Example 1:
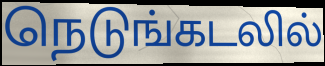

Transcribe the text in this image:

நெடுங்கடலில்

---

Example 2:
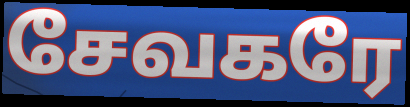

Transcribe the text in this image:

சேவகரே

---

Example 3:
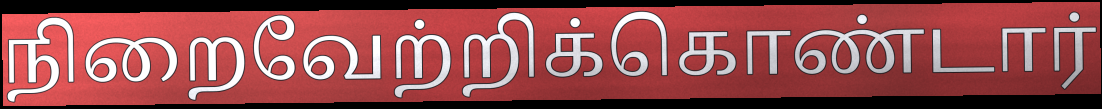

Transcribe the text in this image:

நிறைவேற்றிக்கொண்டார்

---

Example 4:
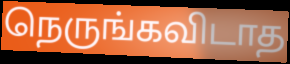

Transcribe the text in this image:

நெருங்கவிடாத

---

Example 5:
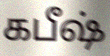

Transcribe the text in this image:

கபீஷ்